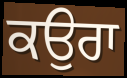
ਕਉਰਾ